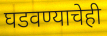
घडवण्याचेही